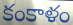
కంకాళం